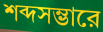
শব্দসম্ভারে